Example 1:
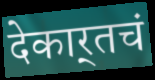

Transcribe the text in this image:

देकार्तचं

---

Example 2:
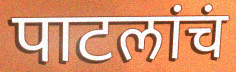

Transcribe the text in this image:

पाटलांचं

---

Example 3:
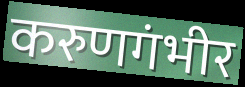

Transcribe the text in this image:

करुणगंभीर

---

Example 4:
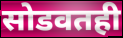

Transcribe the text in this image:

सोडवतही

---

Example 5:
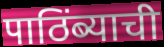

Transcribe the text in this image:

पाठिंब्याची